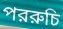
পররুচি